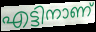
എട്ടിനാണ്